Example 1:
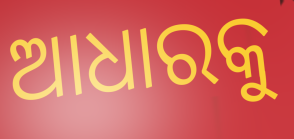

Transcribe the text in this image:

ଆଧାରକୁ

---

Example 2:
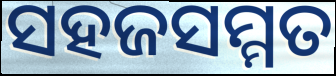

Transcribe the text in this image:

ସହଜସମ୍ମତ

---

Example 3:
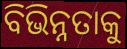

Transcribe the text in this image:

ବିଭିନ୍ନତାକୁ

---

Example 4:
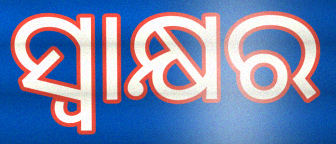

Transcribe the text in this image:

ସ୍ଵାକ୍ଷର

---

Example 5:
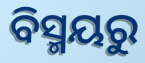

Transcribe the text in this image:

ବିସ୍ମୟରୁ